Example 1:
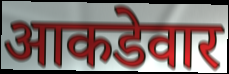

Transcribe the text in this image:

आकडेवार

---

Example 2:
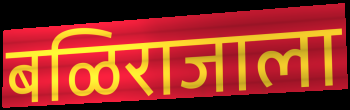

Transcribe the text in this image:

बळिराजाला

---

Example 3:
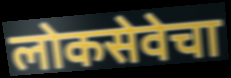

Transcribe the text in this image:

लोकसेवेचा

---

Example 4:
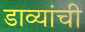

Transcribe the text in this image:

डाव्यांची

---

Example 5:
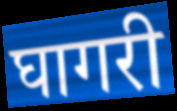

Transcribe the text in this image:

घागरी